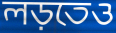
লড়তেও